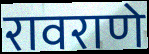
रावराणे